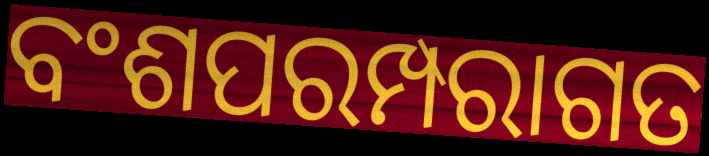
ବଂଶପରମ୍ପରାଗତ